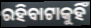
ରହିବାଟାକୁହିଁ